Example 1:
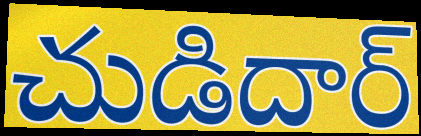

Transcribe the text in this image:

చుడిదార్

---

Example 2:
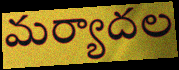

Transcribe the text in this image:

మర్యాదల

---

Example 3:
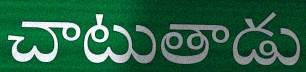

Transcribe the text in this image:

చాటుతాడు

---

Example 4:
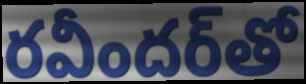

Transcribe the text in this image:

రవీందర్‌తో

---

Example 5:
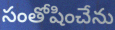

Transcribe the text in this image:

సంతోషించేను